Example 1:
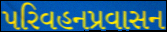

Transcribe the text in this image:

પરિવહનપ્રવાસન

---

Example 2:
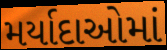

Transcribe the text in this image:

મર્યાદાઓમાં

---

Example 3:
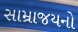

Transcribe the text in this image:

સામ્રાજયનો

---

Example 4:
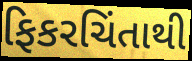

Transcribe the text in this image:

ફિકરચિંતાથી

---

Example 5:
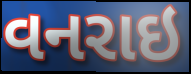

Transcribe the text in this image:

વનરાઇ